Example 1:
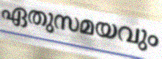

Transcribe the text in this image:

ഏതുസമയവും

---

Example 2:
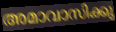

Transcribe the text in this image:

അമാവാസിക്കു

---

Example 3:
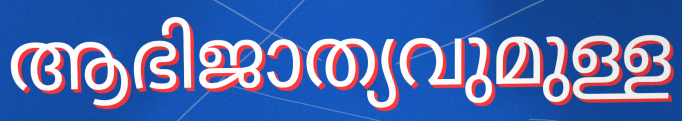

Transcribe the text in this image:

ആഭിജാത്യവുമുള്ള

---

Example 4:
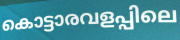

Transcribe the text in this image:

കൊട്ടാരവളപ്പിലെ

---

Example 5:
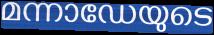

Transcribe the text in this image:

മന്നാഡേയുടെ